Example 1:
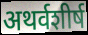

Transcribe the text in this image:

अथर्वशीर्ष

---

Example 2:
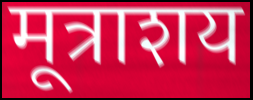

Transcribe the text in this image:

मूत्राशय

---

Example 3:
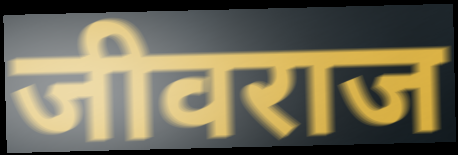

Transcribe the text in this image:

जीवराज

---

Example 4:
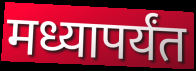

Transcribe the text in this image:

मध्यापर्यंत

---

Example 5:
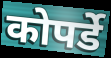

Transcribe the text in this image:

कोपर्डे